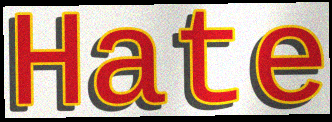
Hate